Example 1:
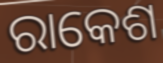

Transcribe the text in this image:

ରାକେଶ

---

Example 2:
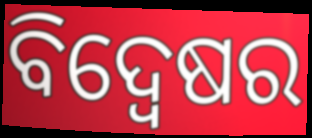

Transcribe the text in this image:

ବିଦ୍ବେଷର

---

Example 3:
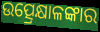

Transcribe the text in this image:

ଉତ୍ପ୍ରେକ୍ଷାଳଙ୍କାର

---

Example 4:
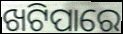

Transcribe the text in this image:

ଖଟିପାରେ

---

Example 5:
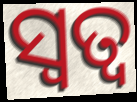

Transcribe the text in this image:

ସ୍ୱତ୍ୱ